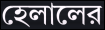
হেলালের